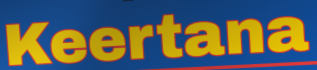
Keertana